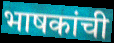
भाषकांची